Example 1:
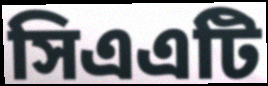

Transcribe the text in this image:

সিএএটি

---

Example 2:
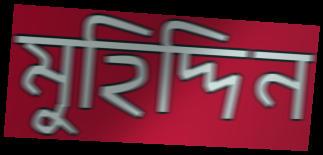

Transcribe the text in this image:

মুহিদ্দিন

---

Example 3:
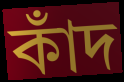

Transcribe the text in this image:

কাঁদ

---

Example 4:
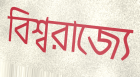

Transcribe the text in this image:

বিশ্বরাজ্যে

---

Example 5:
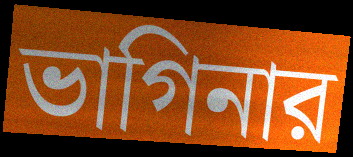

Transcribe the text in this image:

ভাগিনার